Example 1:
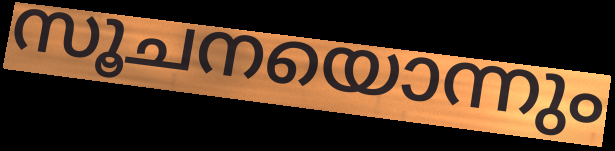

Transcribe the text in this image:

സൂചനയൊന്നും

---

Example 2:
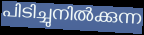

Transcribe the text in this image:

പിടിച്ചുനിൽക്കുന്ന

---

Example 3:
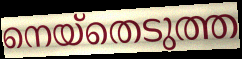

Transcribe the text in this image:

നെയ്തെടുത്ത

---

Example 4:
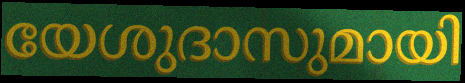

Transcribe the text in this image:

യേശുദാസുമായി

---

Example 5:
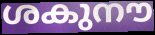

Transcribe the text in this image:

ശകുനൗ